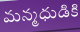
మన్మధుడికి